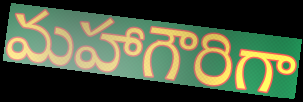
మహాగౌరిగా